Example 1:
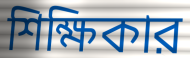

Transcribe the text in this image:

শিক্ষিকার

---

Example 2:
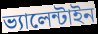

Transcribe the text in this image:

ভ্যালেন্টাইন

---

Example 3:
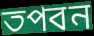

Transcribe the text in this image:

তপবন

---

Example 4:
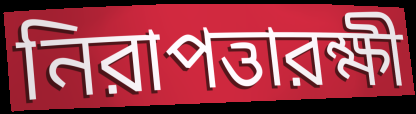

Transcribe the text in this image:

নিরাপত্তারক্ষী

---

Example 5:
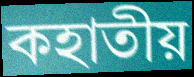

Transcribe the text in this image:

কহাতীয়